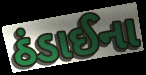
ઠંડાઈના